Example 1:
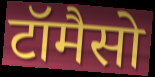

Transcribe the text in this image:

टॉमैसो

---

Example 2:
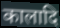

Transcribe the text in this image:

कालादि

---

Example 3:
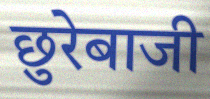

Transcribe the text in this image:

छुरेबाजी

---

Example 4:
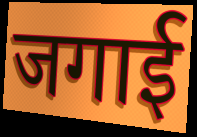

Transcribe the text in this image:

जगाई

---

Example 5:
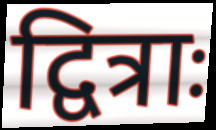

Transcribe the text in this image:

द्वित्राः